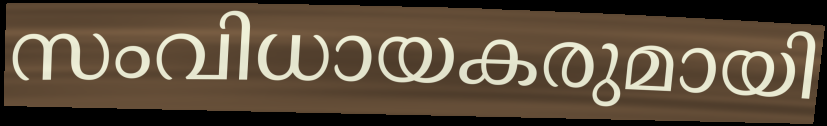
സംവിധായകരുമായി